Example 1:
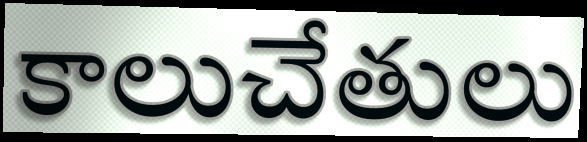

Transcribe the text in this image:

కాలుచేతులు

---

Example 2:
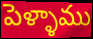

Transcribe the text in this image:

పెళ్ళాము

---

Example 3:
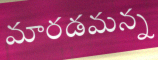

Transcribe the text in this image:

మారడమన్న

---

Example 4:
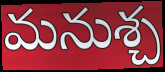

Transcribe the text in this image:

మనుశ్చ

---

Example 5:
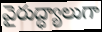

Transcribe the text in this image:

వైరుద్ధ్యాలుగా